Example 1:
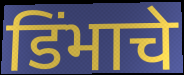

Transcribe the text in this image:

डिंभाचे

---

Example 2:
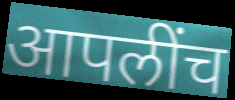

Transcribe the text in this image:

आपलींच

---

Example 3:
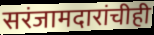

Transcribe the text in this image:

सरंजामदारांचीही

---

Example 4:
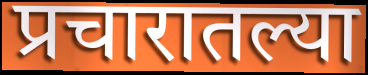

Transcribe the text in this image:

प्रचारातल्या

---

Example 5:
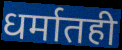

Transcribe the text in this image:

धर्मातही